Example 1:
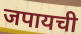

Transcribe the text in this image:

जपायची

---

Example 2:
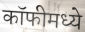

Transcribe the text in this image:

कॉफीमध्ये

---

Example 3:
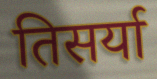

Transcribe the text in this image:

तिसर्या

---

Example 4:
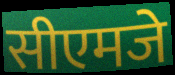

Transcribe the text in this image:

सीएमजे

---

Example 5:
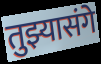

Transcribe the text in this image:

तुझ्यासंगे